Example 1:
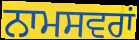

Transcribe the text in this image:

ਨਾਮਸਵਰਾਂ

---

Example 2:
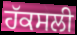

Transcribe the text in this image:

ਹੱਕਸਲੀ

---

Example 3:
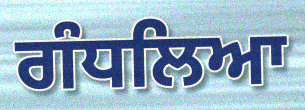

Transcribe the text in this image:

ਗੰਧਲਿਆ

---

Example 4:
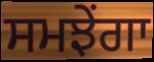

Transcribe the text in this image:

ਸਮਝੇਂਗਾ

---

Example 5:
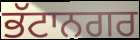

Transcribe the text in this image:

ਭੱਟਾਨਗਰ